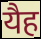
यैह